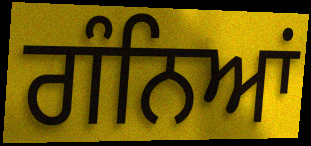
ਗੰਨਿਆਂ